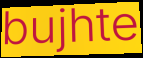
bujhte